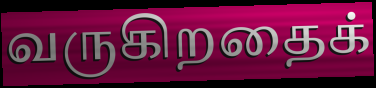
வருகிறதைக்